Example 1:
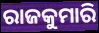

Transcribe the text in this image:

ରାଜକୁମାରି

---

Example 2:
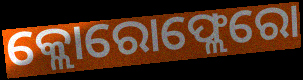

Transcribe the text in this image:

କ୍ଲୋରୋଫ୍ଲେରୋ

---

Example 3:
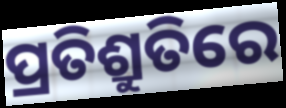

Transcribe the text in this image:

ପ୍ରତିଶ୍ରୁତିରେ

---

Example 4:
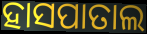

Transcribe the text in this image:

ହାସପାତାଲ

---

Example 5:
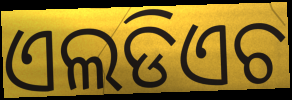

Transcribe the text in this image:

ଏଲଡିଏଚ